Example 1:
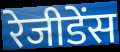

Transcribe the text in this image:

रेजीडेंस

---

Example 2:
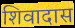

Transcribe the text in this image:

शिवादास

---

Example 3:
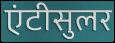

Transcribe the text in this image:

एंटीसुलर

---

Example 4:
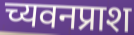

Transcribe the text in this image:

च्‍यवनप्राश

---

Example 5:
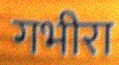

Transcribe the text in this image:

गभीरा